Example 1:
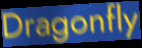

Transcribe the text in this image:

Dragonfly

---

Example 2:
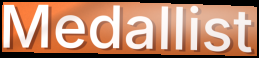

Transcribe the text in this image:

Medallist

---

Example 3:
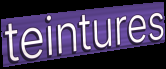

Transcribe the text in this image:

teintures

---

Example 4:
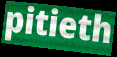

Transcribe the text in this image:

pitieth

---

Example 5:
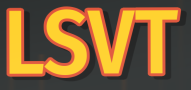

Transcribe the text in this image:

LSVT